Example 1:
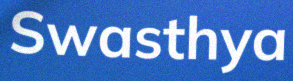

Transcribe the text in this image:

Swasthya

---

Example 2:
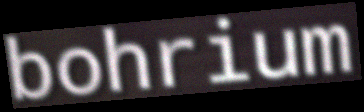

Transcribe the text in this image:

bohrium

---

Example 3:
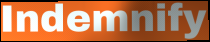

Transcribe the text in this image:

Indemnify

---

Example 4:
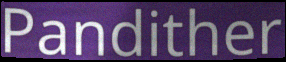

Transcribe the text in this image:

Pandither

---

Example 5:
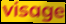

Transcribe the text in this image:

visage